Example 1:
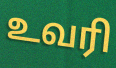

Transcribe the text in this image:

உவரி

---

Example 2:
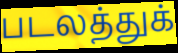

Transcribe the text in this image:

படலத்துக்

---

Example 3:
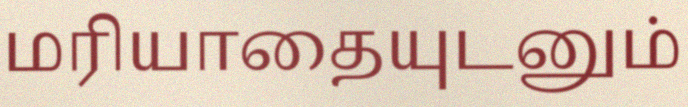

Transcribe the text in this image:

மரியாதையுடனும்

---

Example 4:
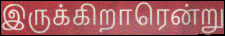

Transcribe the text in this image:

இருக்கிறாரென்று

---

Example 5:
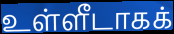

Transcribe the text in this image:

உள்ளீடாகக்